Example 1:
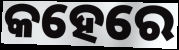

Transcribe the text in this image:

କହେରେ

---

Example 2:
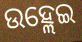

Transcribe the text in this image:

ଉହ୍ଲେଇ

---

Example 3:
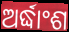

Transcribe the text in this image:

ଅର୍ଦ୍ଧାଂଶ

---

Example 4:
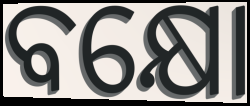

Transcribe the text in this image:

ବକ୍ଷୋ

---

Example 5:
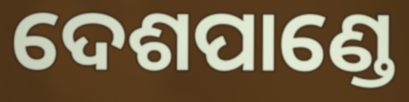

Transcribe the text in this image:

ଦେଶପାଣ୍ଡେ